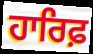
ਹਾਰਿਫ਼